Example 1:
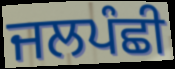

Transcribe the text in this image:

ਜਲਪੰਛੀ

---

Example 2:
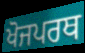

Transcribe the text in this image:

ਖੋਜਪਰਥ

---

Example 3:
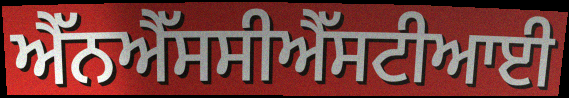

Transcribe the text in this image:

ਐੱਨਐੱਸਸੀਐੱਸਟੀਆਈ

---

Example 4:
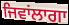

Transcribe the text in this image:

ਜਿਵਾਂਲਾਗਾ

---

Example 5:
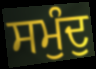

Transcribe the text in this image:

ਸਮੁੰਦੁ